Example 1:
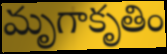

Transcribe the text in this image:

మృగాకృతిం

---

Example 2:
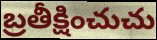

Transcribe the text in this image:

బ్రతీక్షించుచు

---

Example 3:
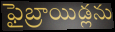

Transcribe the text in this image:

ఫైబ్రాయిడ్లను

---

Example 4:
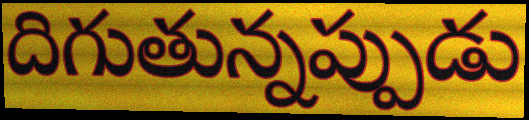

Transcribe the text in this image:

దిగుతున్నప్పుడు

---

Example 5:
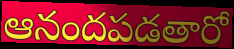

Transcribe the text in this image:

ఆనందపడతారో